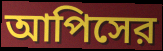
আপিসের